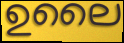
ഉലൈ